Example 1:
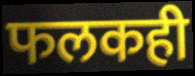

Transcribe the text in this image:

फलकही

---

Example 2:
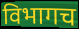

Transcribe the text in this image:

विभागच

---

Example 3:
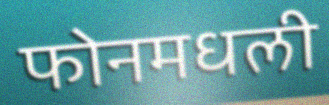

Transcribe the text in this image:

फोनमधली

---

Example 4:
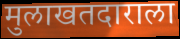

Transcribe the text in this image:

मुलाखतदाराला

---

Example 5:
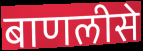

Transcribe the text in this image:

बाणलीसे